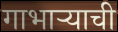
गाभार्‍याची